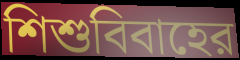
শিশুবিবাহের